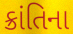
ક્રાંતિના